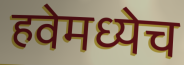
हवेमध्येच